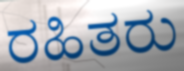
ರಹಿತರು